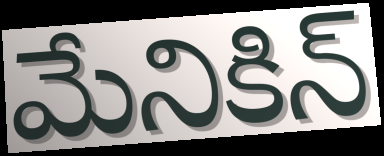
మేనికిన్